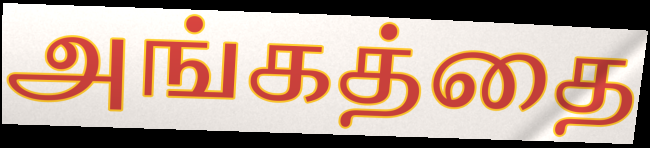
அங்கத்தை